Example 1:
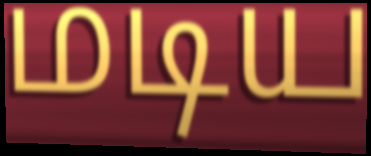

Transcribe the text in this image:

மடிய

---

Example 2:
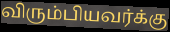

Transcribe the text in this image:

விரும்பியவர்க்கு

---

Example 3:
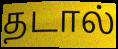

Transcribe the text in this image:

தடால்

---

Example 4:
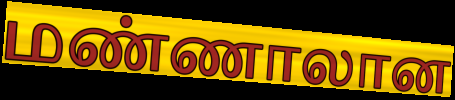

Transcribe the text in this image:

மண்ணாலான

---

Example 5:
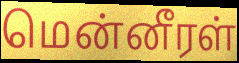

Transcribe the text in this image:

மென்னீரள்